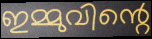
ഇമ്മുവിന്റെ